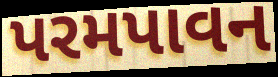
પરમપાવન